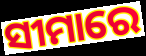
ସୀମାରେ